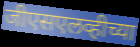
जीएसएलव्हीच्या